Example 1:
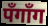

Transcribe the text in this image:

पँगाँग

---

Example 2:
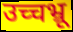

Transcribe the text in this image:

उच्चभ्रू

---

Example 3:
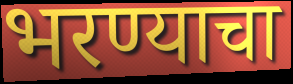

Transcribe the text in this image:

भरण्याचा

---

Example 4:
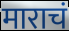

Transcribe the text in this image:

माराचं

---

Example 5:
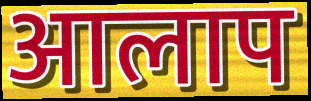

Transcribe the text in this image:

आलाप